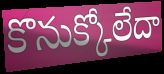
కొనుక్కోలేదా